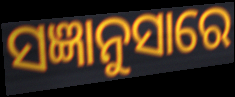
ସଜ୍ଞାନୁସାରେ